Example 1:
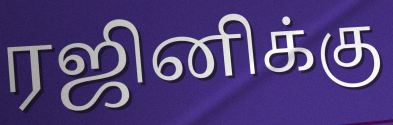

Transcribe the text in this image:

ரஜினிக்கு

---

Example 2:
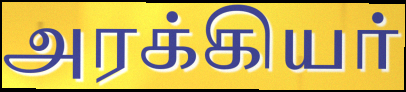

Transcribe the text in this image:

அரக்கியர்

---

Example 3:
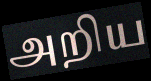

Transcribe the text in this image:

அறிய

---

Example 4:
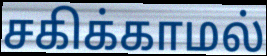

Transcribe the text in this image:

சகிக்காமல்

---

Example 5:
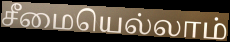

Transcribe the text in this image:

சீமையெல்லாம்